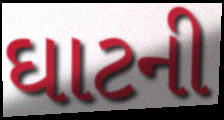
ઘાટની